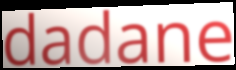
dadane